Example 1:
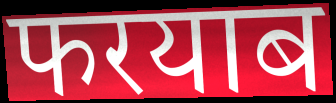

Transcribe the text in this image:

फरयाब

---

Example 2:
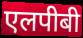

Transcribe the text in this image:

एलपीबी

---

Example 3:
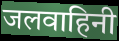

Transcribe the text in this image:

जलवाहिनी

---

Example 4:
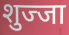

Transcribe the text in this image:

शुज्जा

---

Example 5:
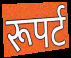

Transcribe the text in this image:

रूपर्ट